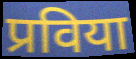
प्रविया